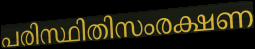
പരിസ്ഥിതിസംരക്ഷണ